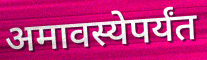
अमावस्येपर्यंत